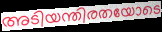
അടിയന്തിരതയോടെ